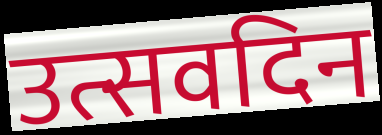
उत्सवदिन